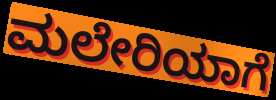
ಮಲೇರಿಯಾಗೆ